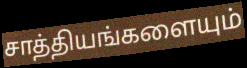
சாத்தியங்களையும்